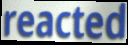
reacted